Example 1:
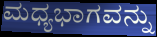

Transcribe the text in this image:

ಮಧ್ಯಭಾಗವನ್ನು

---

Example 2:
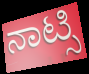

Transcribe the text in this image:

ನಾಟ್ಸಿ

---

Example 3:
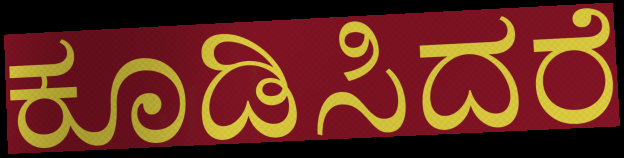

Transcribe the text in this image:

ಕೂಡಿಸಿದರೆ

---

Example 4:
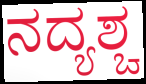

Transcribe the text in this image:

ನದ್ಯಶ್ಚ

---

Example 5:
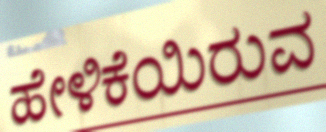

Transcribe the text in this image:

ಹೇಳಿಕೆಯಿರುವ